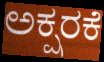
ಅಕ್ಷರಕೆ